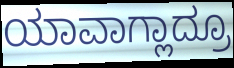
ಯಾವಾಗ್ಲಾದ್ರೂ